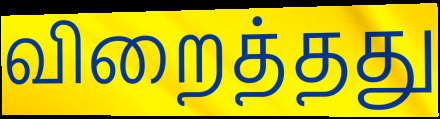
விறைத்தது